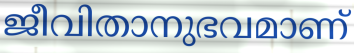
ജീവിതാനുഭവമാണ്